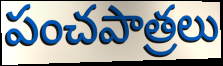
పంచపాత్రలు